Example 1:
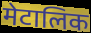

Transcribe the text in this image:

मेटालिक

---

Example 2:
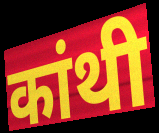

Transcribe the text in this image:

कांथी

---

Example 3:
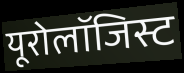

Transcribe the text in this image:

यूरोलॉजिस्ट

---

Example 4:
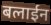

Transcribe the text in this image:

बलाईन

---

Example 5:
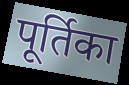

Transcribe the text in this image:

पूर्तिका